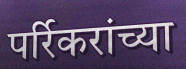
पर्रिकरांच्या